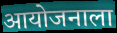
आयोजनाला